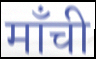
माँची